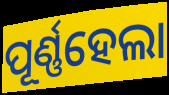
ପୂର୍ଣ୍ଣହେଲା